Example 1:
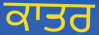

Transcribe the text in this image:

ਕਾਤਰ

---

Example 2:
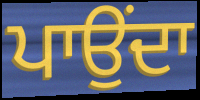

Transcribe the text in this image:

ਪਾਉਂਦਾ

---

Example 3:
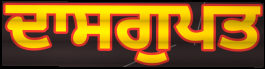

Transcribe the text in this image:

ਦਾਸਗੁਪਤ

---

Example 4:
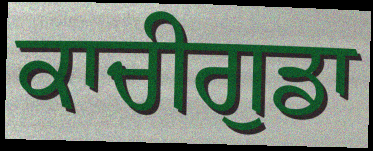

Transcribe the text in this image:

ਕਾਚੀਗੁਡਾ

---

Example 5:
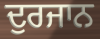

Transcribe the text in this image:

ਦੁਰਜਾਨ